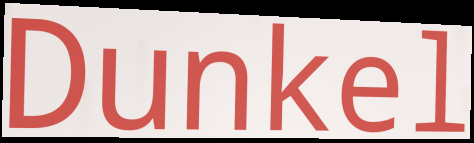
Dunkel